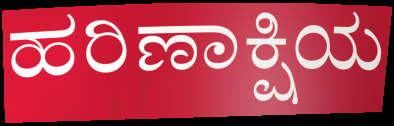
ಹರಿಣಾಕ್ಷಿಯ